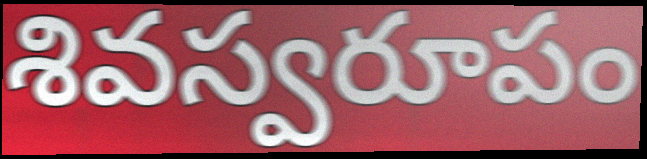
శివస్వరూపం